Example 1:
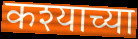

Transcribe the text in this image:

कश्याच्या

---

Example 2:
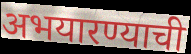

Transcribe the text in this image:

अभयारण्याची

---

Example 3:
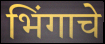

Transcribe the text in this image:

भिंगाचे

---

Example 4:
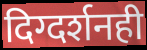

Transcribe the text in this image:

दिग्दर्शनही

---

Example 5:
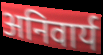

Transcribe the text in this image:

अनिवार्य